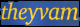
theyvam